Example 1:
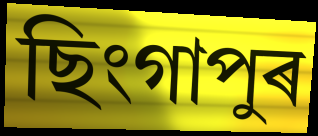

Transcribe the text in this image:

ছিংগাপুৰ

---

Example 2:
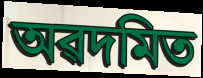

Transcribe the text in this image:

অৱদমিত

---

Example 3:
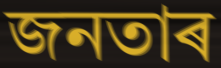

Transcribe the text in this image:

জনতাৰ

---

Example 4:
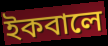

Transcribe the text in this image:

ইকবালে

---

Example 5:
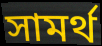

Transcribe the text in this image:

সামৰ্থ